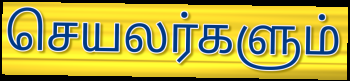
செயலர்களும்